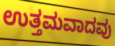
ಉತ್ತಮವಾದವು